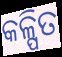
କଳ୍ପିତ